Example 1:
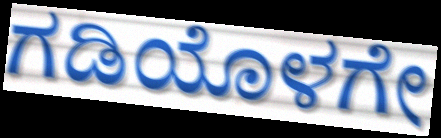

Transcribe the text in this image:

ಗಡಿಯೊಳಗೇ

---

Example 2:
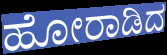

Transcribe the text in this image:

ಹೋರಾಡಿದ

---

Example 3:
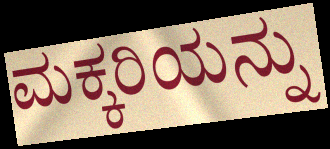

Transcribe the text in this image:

ಮಕ್ಕರಿಯನ್ನು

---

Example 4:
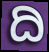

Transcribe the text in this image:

ದಿ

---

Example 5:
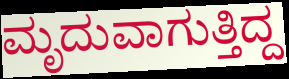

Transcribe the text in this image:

ಮೃದುವಾಗುತ್ತಿದ್ದ